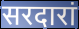
सरदारां